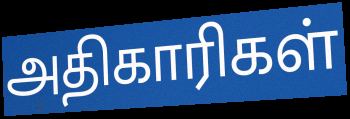
அதிகாரிகள்